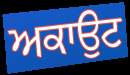
ਅਕਾਉਟ